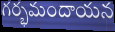
గర్భమందాయన